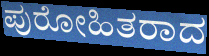
ಪುರೋಹಿತರಾದ